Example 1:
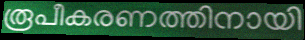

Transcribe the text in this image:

രൂപീകരണത്തിനായി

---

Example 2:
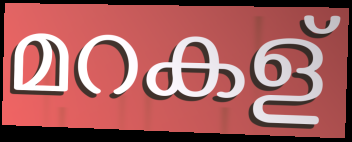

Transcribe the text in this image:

മറകള്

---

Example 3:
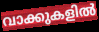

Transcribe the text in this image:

വാക്കുകളിൽ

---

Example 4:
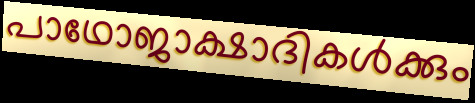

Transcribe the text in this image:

പാഥോജാക്ഷാദികൾക്കും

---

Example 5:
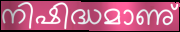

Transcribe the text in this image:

നിഷിദ്ധമാണു്